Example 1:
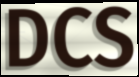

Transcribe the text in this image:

DCS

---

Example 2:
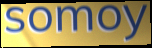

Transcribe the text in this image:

somoy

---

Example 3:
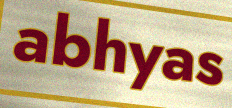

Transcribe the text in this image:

abhyas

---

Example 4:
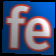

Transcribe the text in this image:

fe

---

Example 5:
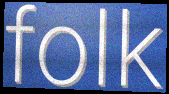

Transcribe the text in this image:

folk